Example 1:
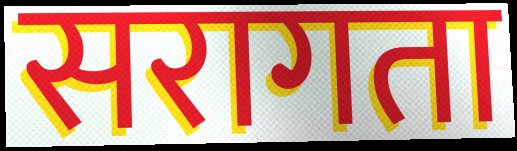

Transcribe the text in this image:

सरागता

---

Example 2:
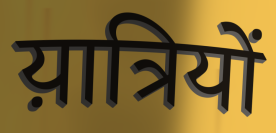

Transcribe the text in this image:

य़ात्रियों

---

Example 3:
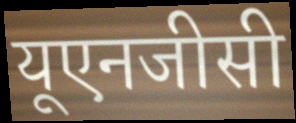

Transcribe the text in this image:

यूएनजीसी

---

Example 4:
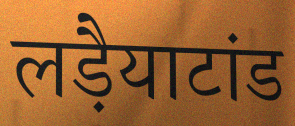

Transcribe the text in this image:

लड़ैयाटांड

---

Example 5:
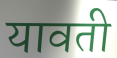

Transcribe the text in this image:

यावती